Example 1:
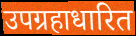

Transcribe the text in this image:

उपग्रहाधारित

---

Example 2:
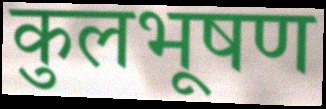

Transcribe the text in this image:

कुलभूषण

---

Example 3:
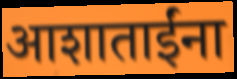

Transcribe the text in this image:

आशाताईंना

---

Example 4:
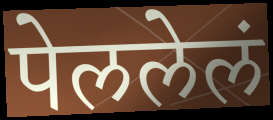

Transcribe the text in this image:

पेललेलं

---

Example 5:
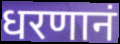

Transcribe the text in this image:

धरणानं